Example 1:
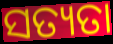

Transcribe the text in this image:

ସତ୍ୟତା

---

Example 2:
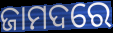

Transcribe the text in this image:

ଜାମଦରେ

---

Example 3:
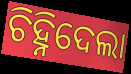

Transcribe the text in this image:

ଚିହ୍ନିଦେଲା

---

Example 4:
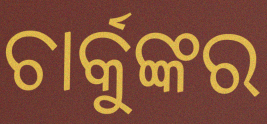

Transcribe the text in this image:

ଚାର୍କୁଙ୍କର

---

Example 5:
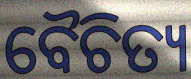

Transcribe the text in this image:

ବୈଚିତ୍ୟ